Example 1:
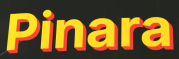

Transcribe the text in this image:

Pinara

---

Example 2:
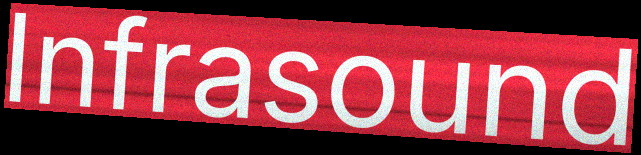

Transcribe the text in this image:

Infrasound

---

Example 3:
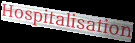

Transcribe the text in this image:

Hospitalisation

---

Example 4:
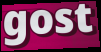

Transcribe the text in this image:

gost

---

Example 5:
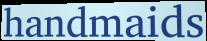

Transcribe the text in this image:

handmaids